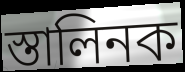
স্তালিনক